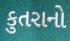
કુતરાનો